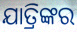
ଯାତ୍ରିଙ୍କର